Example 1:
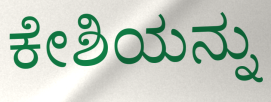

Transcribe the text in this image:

ಕೇಶಿಯನ್ನು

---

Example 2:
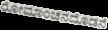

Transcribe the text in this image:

ರೋಮಾಂಚನದೊಡನೆ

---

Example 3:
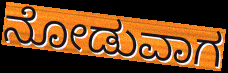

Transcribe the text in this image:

ನೋಡುವಾಗ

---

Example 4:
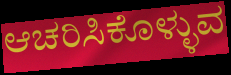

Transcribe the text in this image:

ಆಚರಿಸಿಕೊಳ್ಳುವ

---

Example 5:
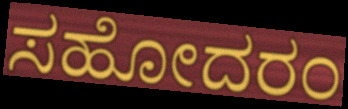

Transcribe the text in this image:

ಸಹೋದರಂ